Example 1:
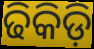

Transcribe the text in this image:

ଢିକିଡ଼ି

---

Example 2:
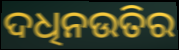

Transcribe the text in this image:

ଦଧିନଉତିର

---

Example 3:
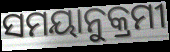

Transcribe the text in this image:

ସମୟାନୁକ୍ରମୀ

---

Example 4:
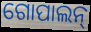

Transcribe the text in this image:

ଗୋପାଲନ୍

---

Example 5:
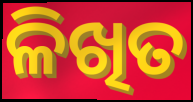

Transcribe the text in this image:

ଳିଖିତ